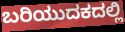
ಬರಿಯುದಕದಲ್ಲಿ